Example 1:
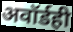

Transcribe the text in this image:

अवॉर्डही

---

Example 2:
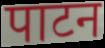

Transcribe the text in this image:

पाटन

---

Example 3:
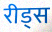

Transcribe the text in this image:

रीड्स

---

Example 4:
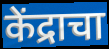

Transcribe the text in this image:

केंद्राचा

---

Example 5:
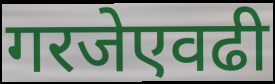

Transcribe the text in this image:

गरजेएवढी